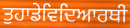
ਤੁਹਾਡੇਵਿਦਿਆਰਥੀ